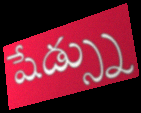
షేడ్స్ను